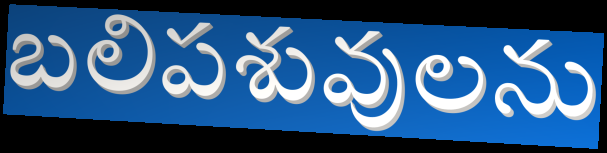
బలిపశువులను